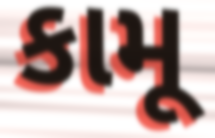
કામૂ